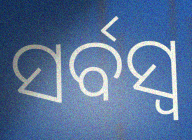
ସର୍ବସ୍ୱ